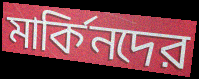
মার্কিনদের